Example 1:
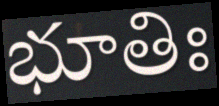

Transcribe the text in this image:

భూతిః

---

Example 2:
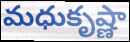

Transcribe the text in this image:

మధుకృష్ణా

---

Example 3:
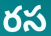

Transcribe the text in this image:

రస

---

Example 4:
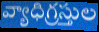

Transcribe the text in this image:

వ్యాధిగ్రస్తుల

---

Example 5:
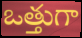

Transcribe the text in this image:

ఒత్తుగా